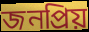
জনপ্ৰিয়